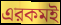
এরকমই